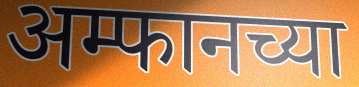
अम्फानच्या